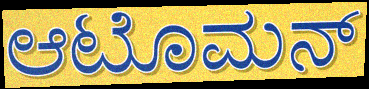
ಆಟೊಮನ್